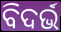
ବିଦର୍ଭ